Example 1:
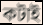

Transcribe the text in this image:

কটাই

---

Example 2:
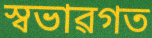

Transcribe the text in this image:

স্বভাৱগত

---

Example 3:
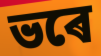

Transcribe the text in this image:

ভৰে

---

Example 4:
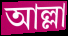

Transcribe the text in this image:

আল্লা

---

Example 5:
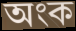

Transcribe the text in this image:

অংক